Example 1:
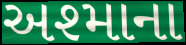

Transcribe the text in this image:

અશ્માના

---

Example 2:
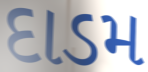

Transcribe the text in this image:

દાડમ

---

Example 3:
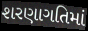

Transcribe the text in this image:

શરણાગતિમાં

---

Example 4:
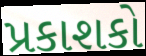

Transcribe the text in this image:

પ્રકાશકો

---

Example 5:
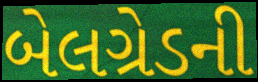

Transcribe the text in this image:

બેલગ્રેડની